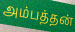
அம்பத்தன்